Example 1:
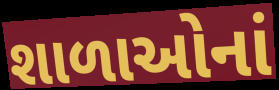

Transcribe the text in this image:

શાળાઓનાં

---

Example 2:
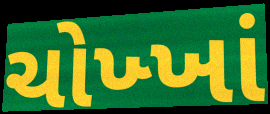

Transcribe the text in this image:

ચોખ્ખાં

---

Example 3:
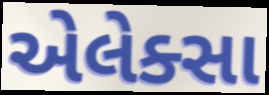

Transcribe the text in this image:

એલેક્સા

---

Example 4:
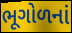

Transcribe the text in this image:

ભૂગોળનાં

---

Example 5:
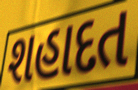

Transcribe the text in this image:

શહાદત